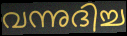
വന്നുദിച്ച